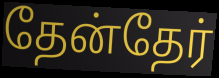
தேன்தேர்